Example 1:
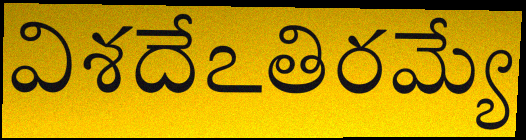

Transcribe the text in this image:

విశదేఽతిరమ్యే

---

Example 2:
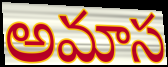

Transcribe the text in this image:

అమాస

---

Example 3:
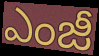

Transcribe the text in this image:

ఎంజీ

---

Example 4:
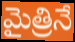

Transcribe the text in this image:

మైత్రినే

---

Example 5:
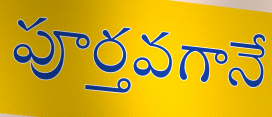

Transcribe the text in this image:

పూర్తవగానే